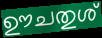
ഊചതുശ്